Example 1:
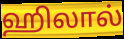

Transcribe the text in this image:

ஹிலால்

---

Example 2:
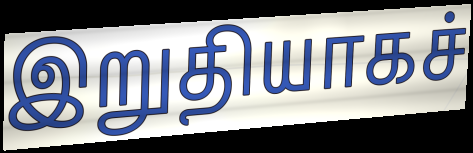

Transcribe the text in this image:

இறுதியாகச்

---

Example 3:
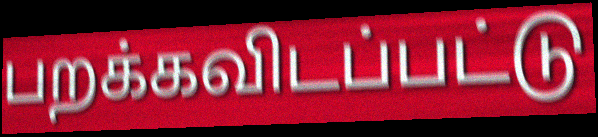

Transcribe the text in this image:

பறக்கவிடப்பட்டு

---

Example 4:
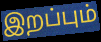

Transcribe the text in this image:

இறப்பும்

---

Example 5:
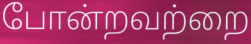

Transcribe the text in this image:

போன்றவற்றை